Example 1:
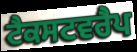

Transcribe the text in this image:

ਟੈਕਸਟਵਰੈਪ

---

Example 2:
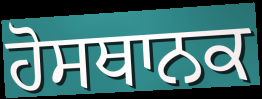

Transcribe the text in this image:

ਹੋਸਥਾਨਕ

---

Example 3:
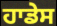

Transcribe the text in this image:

ਹਾਡੇਸ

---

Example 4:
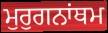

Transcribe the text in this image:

ਮੁਰੁਗਨਾਂਥਮ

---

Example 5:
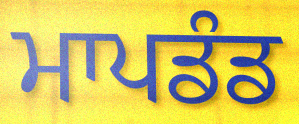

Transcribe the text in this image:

ਮਾਪਡੰਡ